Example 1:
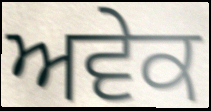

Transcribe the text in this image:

ਅਵੇਕ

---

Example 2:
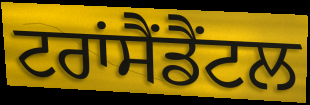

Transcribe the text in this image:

ਟਰਾਂਸੈਂਡੈਂਟਲ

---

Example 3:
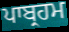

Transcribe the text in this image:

ਪਾਬ੍ਰਹਮ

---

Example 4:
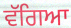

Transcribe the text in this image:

ਵੱਗਿਆ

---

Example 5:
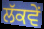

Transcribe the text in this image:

ਲੱਕਵੇਂ